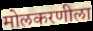
मोलकरणीला